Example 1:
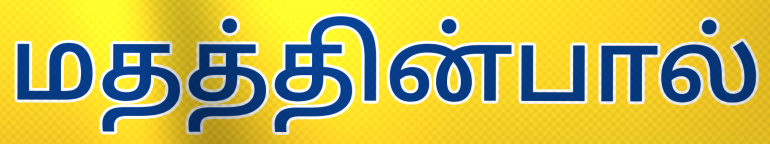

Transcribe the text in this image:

மதத்தின்பால்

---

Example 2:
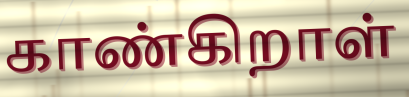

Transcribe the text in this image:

காண்கிறாள்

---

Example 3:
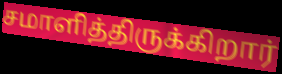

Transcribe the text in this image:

சமாளித்திருக்கிறார்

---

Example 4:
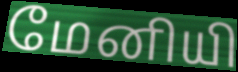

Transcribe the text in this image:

மேனியி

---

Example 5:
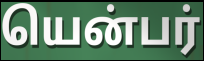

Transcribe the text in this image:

யென்பர்